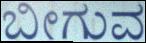
ಬೀಗುವ